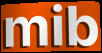
mib